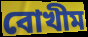
বোখীম